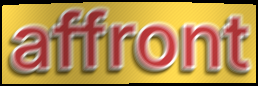
affront